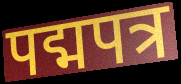
पद्मपत्र